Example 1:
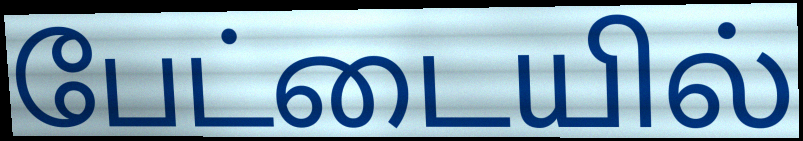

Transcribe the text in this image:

பேட்டையில்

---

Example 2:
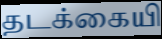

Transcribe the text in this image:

தடக்கையி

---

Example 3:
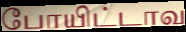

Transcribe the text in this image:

போயிட்டாவ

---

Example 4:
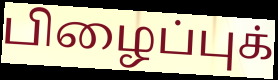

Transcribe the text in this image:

பிழைப்புக்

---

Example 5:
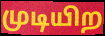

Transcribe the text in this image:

முடியிற